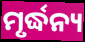
ମୃର୍ଦ୍ଧନ୍ୟ